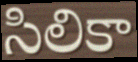
సిలికా